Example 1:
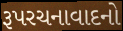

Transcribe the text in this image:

રૂપરચનાવાદનો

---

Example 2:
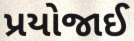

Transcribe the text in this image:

પ્રયોજાઈ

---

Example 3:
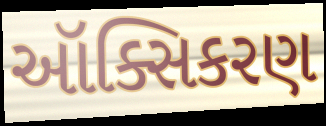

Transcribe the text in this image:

ઑક્સિકરણ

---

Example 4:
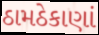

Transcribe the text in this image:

ઠામઠેકાણાં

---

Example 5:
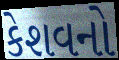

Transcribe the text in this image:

કેશવનો